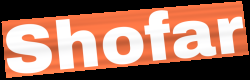
Shofar